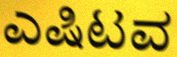
ಎಷಿಟವ